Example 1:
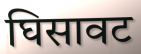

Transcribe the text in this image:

घिसावट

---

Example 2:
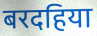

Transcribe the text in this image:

बरदहिया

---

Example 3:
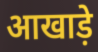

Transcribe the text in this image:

आखाड़े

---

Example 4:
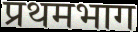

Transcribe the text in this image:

प्रथमभाग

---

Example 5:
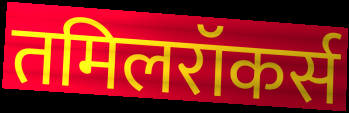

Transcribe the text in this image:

तमिलरॉकर्स